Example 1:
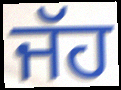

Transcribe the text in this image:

ਜੱਹ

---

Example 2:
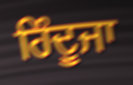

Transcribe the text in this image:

ਹਿੰਦੂਜਾ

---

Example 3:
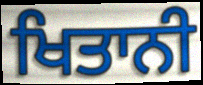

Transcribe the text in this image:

ਖਿਤਾਨੀ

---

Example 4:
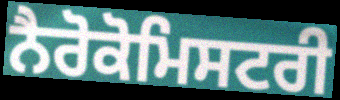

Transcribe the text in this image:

ਨੈਰੋਕੋਮਿਸਟਰੀ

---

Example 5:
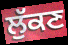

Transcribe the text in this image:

ਲੁੱਕਣ